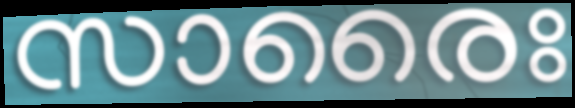
സാരൈഃ